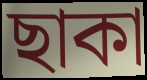
ছাকা